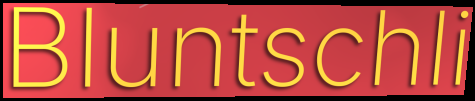
Bluntschli